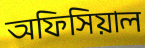
অফিসিয়াল